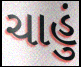
ચાહું